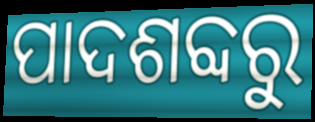
ପାଦଶବ୍ଦରୁ